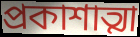
প্রকাশাত্মা